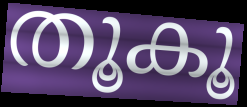
തൂകൂ